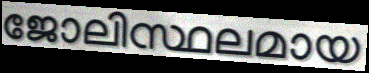
ജോലിസ്ഥലമായ